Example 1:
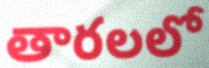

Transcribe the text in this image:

తారలలో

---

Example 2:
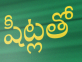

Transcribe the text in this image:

షీట్లతో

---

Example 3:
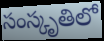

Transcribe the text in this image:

సంస్కృతిలో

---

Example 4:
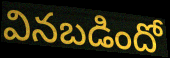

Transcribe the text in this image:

వినబడిందో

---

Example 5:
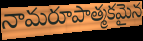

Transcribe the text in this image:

నామరూపాత్మకమైన